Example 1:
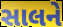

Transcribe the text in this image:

સાલને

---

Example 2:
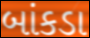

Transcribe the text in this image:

બાંકડા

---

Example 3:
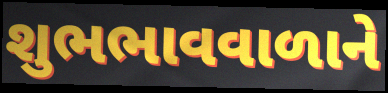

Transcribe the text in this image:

શુભભાવવાળાને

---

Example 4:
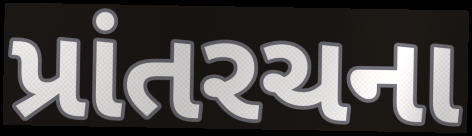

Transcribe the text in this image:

પ્રાંતરચના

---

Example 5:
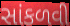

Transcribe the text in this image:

સાંકળવી